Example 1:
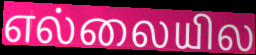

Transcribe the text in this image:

எல்லையில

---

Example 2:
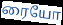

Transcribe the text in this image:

ரையோ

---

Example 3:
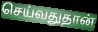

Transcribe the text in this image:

செய்வதுதான்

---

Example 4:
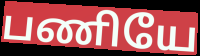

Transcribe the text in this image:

பணியே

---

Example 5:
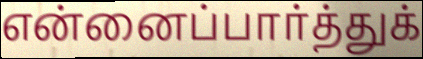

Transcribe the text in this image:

என்னைப்பார்த்துக்